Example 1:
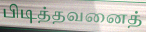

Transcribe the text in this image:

பிடித்தவனைத்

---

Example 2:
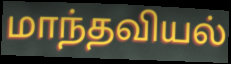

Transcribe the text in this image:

மாந்தவியல்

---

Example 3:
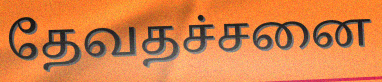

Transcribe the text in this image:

தேவதச்சனை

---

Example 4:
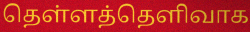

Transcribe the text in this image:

தெள்ளத்தெளிவாக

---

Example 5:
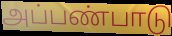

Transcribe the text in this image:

அப்பண்பாடு